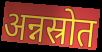
अन्नस्रोत